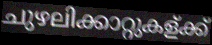
ചുഴലിക്കാറ്റുകള്ക്ക്